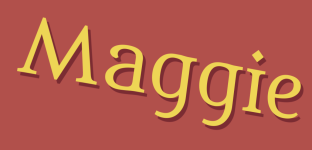
Maggie